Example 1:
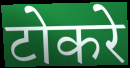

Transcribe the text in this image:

टोकरे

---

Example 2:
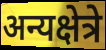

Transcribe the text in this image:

अन्यक्षेत्रे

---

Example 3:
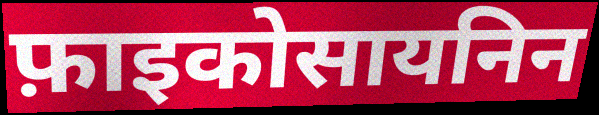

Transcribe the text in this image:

फ़ाइकोसायनिन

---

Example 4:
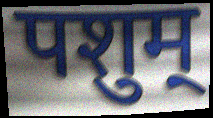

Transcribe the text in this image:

पशुम्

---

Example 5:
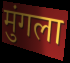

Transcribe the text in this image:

मुंगला